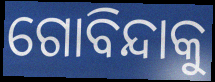
ଗୋବିନ୍ଦାକୁ